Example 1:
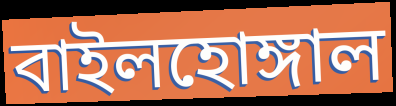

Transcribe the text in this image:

বাইলহোঙ্গাল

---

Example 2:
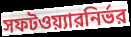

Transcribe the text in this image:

সফটওয়্যারনির্ভর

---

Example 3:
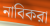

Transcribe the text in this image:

নাবিকরা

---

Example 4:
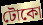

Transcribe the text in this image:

টোকো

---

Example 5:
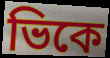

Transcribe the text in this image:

ভিকে